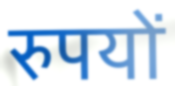
रुपयों